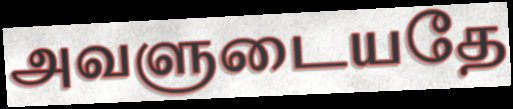
அவளுடையதே